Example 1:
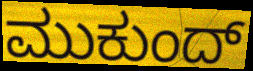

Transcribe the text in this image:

ಮುಕುಂದ್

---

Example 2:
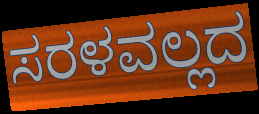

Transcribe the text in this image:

ಸರಳವಲ್ಲದ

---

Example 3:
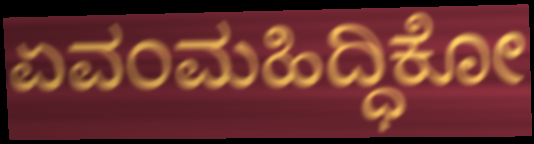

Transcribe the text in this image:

ಏವಂಮಹಿದ್ಧಿಕೋ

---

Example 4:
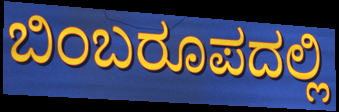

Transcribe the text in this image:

ಬಿಂಬರೂಪದಲ್ಲಿ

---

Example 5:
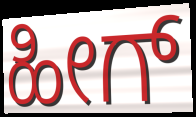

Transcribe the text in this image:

ಹೀಗ್